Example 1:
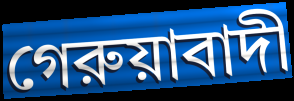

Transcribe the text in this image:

গেরুয়াবাদী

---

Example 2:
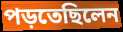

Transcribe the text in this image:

পড়তেছিলেন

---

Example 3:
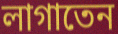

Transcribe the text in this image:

লাগাতেন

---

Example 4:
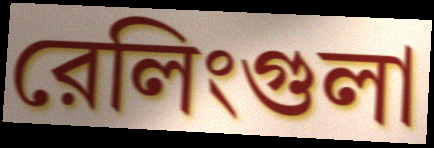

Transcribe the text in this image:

রেলিংগুলা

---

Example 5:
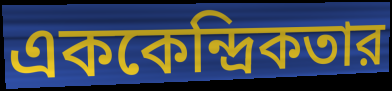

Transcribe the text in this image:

এককেন্দ্রিকতার